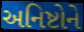
અનિષ્ટોને